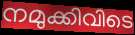
നമുക്കിവിടെ